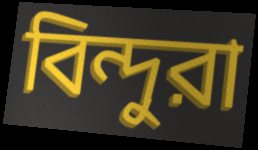
বিন্দুরা